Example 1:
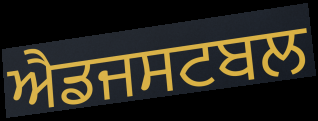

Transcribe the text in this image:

ਐਡਜਸਟਬਲ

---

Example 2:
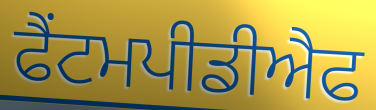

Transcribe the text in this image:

ਫੈਂਟਮਪੀਡੀਐਫ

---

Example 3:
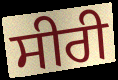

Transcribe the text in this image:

ਸੀਰੀ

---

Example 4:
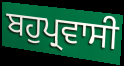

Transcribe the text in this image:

ਬਹੁਪ੍ਰਵਾਸੀ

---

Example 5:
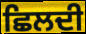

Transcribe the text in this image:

ਛਿਲਦੀ